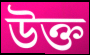
উক্ত